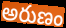
అరుణం